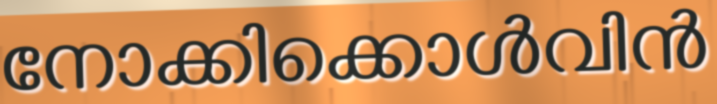
നോക്കിക്കൊൾവിൻ